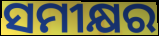
ସମୀକ୍ଷର